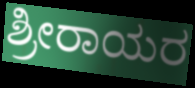
ಶ್ರೀರಾಯರ